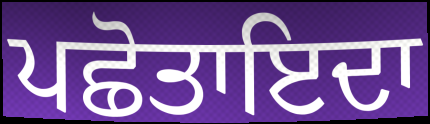
ਪਛੋਤਾਇਦਾ